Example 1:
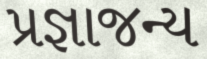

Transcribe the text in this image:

પ્રજ્ઞાજન્ય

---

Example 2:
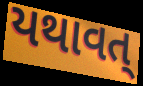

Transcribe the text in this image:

યથાવત્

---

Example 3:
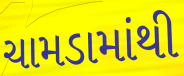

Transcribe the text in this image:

ચામડામાંથી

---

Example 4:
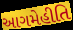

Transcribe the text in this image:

આગમેહીતિ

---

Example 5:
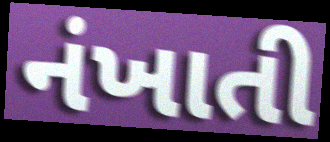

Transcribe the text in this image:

નંખાતી